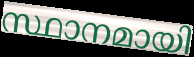
സ്ഥാനമായി